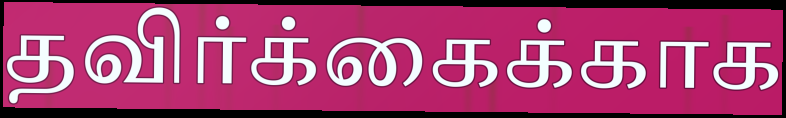
தவிர்க்கைக்காக